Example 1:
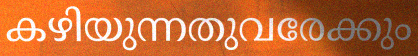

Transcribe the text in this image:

കഴിയുന്നതുവരേക്കും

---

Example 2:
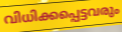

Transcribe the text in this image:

വിധിക്കപ്പെട്ടവരും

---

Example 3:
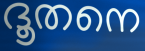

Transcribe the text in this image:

ദൂതനെ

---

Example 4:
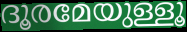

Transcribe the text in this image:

ദൂരമേയുള്ളൂ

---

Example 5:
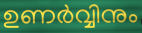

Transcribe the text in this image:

ഉണർവ്വിനും